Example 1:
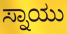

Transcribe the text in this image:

ಸ್ನಾಯು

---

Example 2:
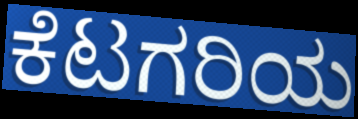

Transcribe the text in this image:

ಕೆಟಗರಿಯ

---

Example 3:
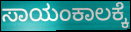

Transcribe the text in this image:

ಸಾಯಂಕಾಲಕ್ಕೆ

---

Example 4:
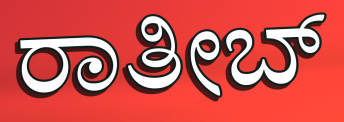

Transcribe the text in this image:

ರಾತೀಬ್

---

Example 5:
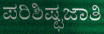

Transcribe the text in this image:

ಪರಿಶಿಷ್ಟಜಾತಿ